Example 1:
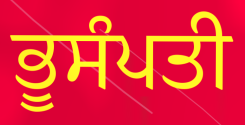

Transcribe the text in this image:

ਭੂਸੰਪਤੀ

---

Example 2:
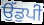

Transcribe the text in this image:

ਉੱਡੁਪੀ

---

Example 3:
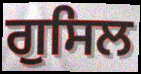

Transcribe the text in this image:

ਗੁਸਿਲ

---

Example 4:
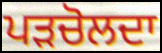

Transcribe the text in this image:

ਪੜਚੋਲਦਾ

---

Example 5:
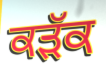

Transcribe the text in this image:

ਕੜੱਕ